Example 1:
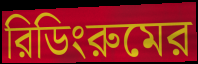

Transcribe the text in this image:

রিডিংরুমের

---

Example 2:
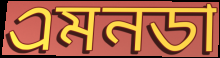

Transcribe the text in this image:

এমনডা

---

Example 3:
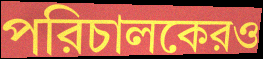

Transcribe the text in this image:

পরিচালকেরও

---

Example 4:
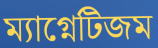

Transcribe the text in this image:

ম্যাগ্নেটিজম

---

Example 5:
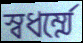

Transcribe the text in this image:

স্বধর্ম্মে